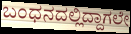
ಬಂಧನದಲ್ಲಿದ್ದಾಗಲೇ